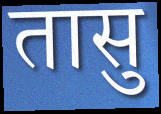
तासु